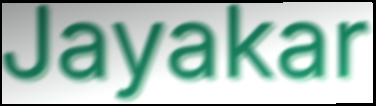
Jayakar